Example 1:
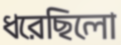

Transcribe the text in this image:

ধরেছিলো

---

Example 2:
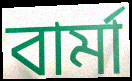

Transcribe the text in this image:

বার্মা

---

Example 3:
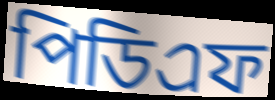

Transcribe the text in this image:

পিডিএফ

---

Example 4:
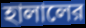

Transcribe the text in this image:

হালালের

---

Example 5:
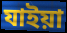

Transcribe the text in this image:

যাইয়া